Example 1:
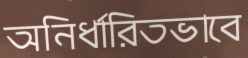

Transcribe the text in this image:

অনির্ধারিতভাবে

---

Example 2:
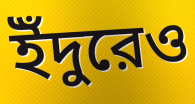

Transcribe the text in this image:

ইঁদুরেও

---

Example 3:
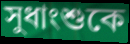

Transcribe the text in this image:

সুধাংশুকে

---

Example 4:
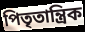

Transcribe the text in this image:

পিতৃতান্ত্রিক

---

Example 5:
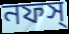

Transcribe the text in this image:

নফস্